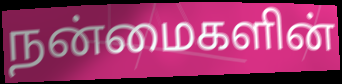
நன்மைகளின்